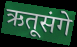
ऋतूसंगे